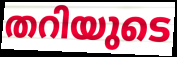
തറിയുടെ